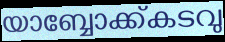
യാബ്ബോക്ക്കടവു